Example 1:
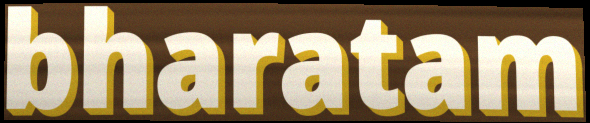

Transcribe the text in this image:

bharatam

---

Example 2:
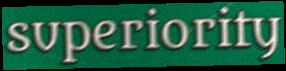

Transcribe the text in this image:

superiority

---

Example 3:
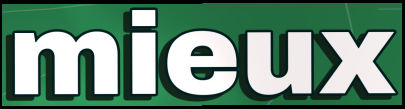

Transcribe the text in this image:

mieux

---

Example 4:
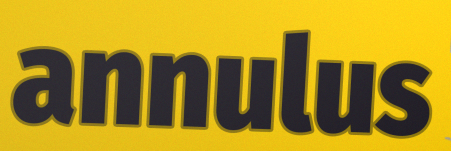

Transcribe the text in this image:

annulus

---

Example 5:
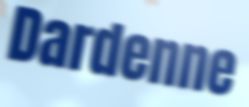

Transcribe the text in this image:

Dardenne